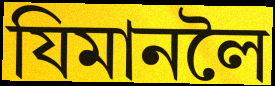
যিমানলৈ